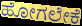
ಹೋಗಲೇಕೆ